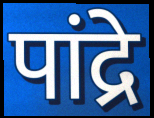
पांद्रे